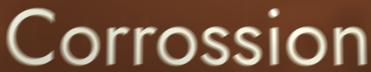
Corrossion